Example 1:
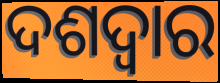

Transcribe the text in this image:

ଦଶଦ୍ୱାର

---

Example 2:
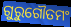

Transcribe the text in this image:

ଗୁରୁଗୌତମଂ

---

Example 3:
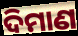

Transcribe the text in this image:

ଦିମାଣ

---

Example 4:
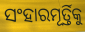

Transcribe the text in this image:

ସଂହାରମୂର୍ତ୍ତିକୁ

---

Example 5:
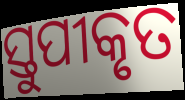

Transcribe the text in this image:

ସ୍ତୁପୀକୃତ